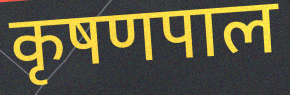
कृषणपाल